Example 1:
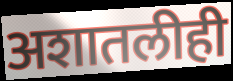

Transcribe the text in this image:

अशातलीही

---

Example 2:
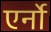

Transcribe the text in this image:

एर्नो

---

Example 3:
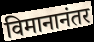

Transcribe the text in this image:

विमानानंतर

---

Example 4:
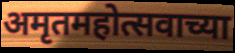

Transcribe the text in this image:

अमृतमहोत्सवाच्या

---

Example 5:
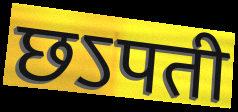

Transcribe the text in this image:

छऽपती